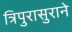
त्रिपुरासुराने